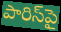
పారిస్‌పై